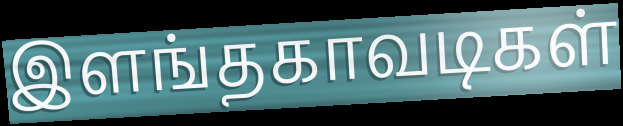
இளங்தகாவடிகள்